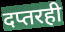
दप्तरही